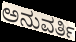
ಅನುವರ್ತಿ